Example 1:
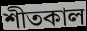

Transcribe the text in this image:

শীতকাল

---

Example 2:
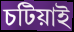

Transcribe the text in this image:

চটিয়াই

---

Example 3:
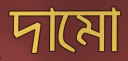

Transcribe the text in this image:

দামো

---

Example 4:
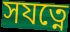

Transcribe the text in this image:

সযত্নে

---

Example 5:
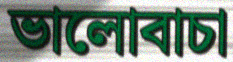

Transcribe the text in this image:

ভালোবাচা